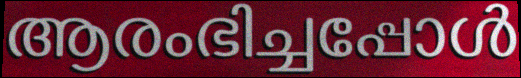
ആരംഭിച്ചപ്പോൾ